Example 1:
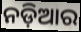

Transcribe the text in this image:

ନଡ଼ିଆର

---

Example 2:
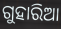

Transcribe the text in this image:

ଗୁହାରିଆ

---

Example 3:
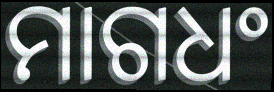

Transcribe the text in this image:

ମାଗଧଂ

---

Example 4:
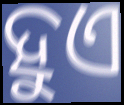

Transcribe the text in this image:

ହୁଏ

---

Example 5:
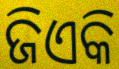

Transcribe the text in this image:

ଜିଏକି